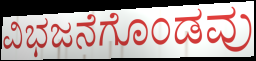
ವಿಭಜನೆಗೊಂಡವು